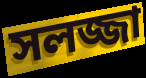
সলজ্জা